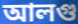
আলগু